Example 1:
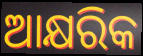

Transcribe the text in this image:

ଆକ୍ଷରିକ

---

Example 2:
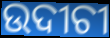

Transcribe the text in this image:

ଉଦୀଚୀ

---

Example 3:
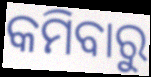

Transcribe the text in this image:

କମିବାରୁ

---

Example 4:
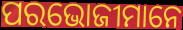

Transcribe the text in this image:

ପରଭୋଜୀମାନେ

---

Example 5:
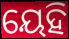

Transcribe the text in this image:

ୟେହି